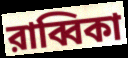
রাব্বিকা